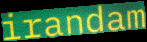
irandam